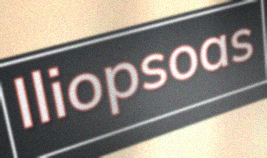
Iliopsoas